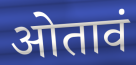
ओतावं